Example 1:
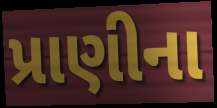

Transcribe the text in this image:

પ્રાણીના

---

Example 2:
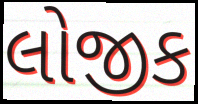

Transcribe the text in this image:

લોજીક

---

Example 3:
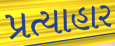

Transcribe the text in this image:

પ્રત્યાહાર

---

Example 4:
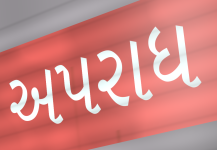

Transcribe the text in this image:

અપરાધ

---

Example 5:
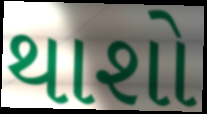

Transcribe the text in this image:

થાશો